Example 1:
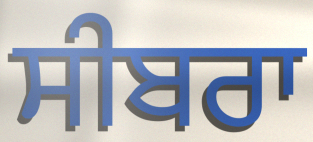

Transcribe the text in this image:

ਸੀਬਰਾ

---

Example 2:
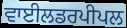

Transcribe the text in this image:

ਵਾਈਲਡਰਪੀਪਲ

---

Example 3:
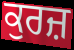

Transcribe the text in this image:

ਕੁਰਜ਼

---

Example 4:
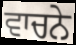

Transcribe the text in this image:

ਵਾਚਨੇ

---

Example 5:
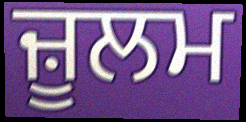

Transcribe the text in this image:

ਜ਼ੂਲਮ